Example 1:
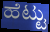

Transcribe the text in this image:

ಹೆಟ್ಟು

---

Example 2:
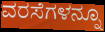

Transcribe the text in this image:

ವರಸೆಗಳನ್ನೂ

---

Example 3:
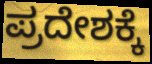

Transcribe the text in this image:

ಪ್ರದೇಶಕ್ಕೆ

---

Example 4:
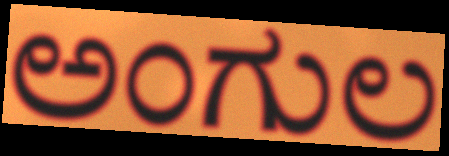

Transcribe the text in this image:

ಅಂಗುಲ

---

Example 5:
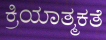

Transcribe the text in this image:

ಕ್ರಿಯಾತ್ಮಕತೆ